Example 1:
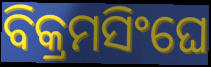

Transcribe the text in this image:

ବିକ୍ରମସିଂଘେ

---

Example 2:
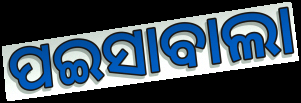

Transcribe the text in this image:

ପଇସାବାଲା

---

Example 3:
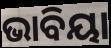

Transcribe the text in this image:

ଭାବିୟା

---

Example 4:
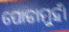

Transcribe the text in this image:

ପୋଡାମୁହାଁ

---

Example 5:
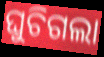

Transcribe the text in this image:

ଘୁଚିଗଲା